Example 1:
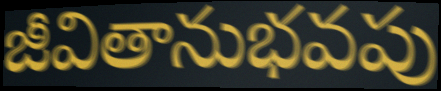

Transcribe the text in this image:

జీవితానుభవపు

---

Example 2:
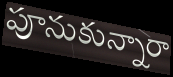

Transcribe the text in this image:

పూనుకున్నారా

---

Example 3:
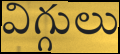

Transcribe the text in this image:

విగ్గులు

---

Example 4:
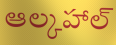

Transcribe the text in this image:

ఆల్కహాల్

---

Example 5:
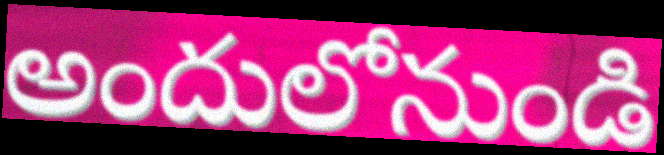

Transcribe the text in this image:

అందులోనుండి